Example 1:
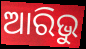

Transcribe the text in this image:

ଆରିଭୁ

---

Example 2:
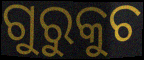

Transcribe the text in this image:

ଗୁରୁକୁଚ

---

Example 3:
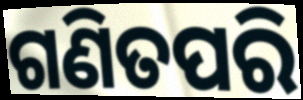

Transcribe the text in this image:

ଗଣିତପରି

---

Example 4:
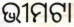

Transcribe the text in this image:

ଭୀମଟା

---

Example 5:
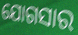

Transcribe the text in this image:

ଯୋଗସାର